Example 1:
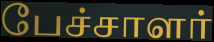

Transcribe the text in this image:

பேச்சாளர்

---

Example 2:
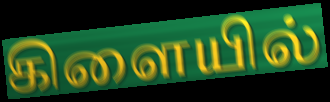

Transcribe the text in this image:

கிளையில்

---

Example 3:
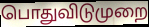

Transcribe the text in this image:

பொதுவிடுமுறை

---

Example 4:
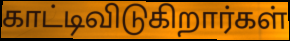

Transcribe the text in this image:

காட்டிவிடுகிறார்கள்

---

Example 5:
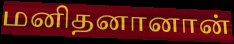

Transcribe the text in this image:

மனிதனானான்